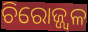
ଚିରୋଜ୍ଜ୍ଵଳ